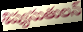
శిష్యసుతులన్